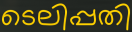
ടെലിപ്പതി